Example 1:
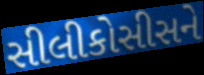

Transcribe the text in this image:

સીલીકોસીસને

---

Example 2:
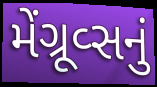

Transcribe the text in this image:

મેંગ્રૂવ્સનું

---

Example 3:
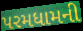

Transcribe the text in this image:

પરમધામની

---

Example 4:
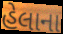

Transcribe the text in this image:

હેલાના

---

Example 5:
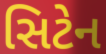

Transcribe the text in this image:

સિટેન